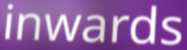
inwards